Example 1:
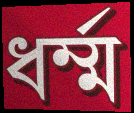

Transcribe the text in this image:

ধর্ম্ম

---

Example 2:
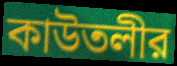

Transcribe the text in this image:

কাউতলীর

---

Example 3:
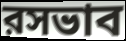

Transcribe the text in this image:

রসভাব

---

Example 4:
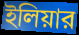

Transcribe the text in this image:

ইলিয়ার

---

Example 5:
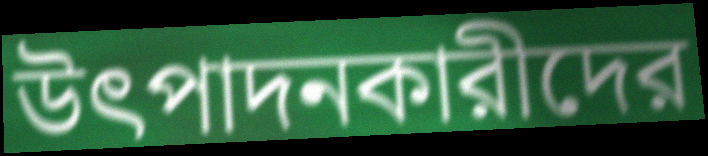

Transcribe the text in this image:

উৎপাদনকারীদের